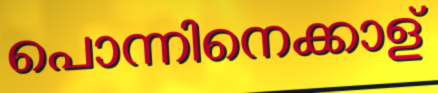
പൊന്നിനെക്കാള്